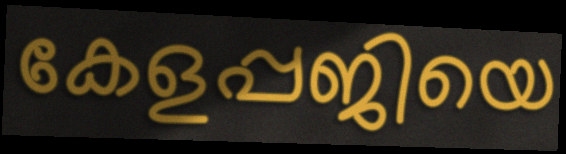
കേളപ്പജിയെ